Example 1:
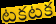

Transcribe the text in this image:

టకటక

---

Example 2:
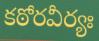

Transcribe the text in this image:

కఠోరవీర్యః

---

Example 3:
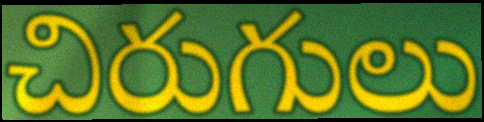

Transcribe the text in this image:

చిరుగులు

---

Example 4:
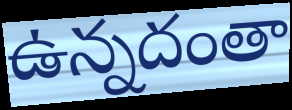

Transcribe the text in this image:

ఉన్నదంతా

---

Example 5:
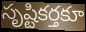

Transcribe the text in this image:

సృష్టికర్తకూ